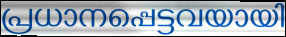
പ്രധാനപ്പെട്ടവയായി